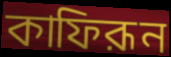
কাফিরূন